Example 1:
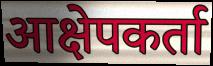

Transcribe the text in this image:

आक्षेपकर्ता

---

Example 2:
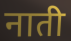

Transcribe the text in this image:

नाती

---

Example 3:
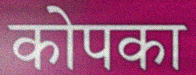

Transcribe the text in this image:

कोपका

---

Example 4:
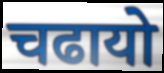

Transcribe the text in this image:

चढायो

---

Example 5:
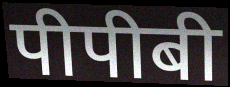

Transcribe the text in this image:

पीपीबी